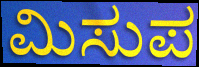
ಮಿಸುಪ